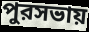
পুরসভায়